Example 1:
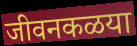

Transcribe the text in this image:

जीवनकळया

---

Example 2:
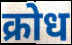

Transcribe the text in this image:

क्रोध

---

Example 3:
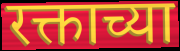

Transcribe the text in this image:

रक्ताच्या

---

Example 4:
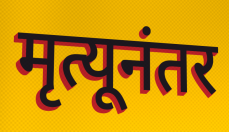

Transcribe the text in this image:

मृत्यूनंतर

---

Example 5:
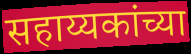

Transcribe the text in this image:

सहाय्यकांच्या